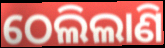
ଠେଲିଲାଣି